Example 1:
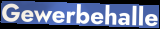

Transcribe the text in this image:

Gewerbehalle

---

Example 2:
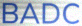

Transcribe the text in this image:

BADC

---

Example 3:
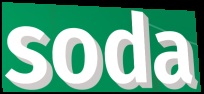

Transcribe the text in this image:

soda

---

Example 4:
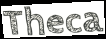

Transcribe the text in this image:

Theca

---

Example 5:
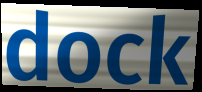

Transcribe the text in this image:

dock